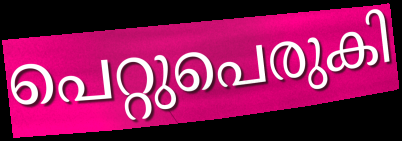
പെറ്റുപെരുകി